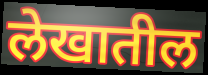
लेखातील